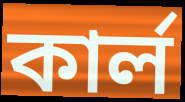
কার্ল